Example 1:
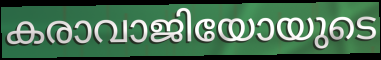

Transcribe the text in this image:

കരാവാജിയോയുടെ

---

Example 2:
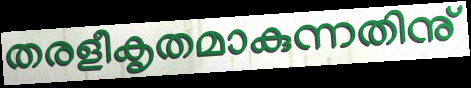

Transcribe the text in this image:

തരളീകൃതമാകുന്നതിനു്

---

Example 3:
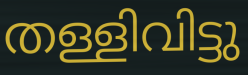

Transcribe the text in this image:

തള്ളിവിട്ടു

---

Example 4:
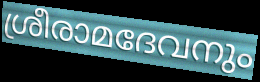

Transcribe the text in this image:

ശ്രീരാമദേവനും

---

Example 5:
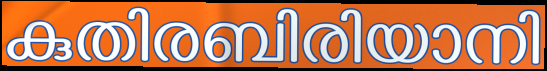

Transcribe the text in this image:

കുതിരബിരിയാനി